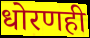
धोरणही